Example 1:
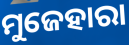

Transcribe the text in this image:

ମୁଜେହାରା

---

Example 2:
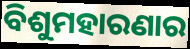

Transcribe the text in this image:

ବିଶୁମହାରଣାର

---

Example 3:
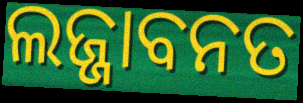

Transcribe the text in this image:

ଲଜ୍ଜାବନତ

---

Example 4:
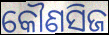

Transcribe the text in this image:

କୌଣସିଜ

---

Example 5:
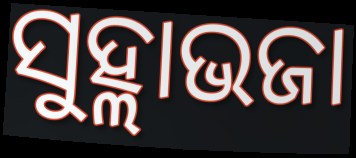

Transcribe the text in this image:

ସୁହ୍ଲାଭଜା